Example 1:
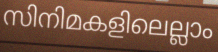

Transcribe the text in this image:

സിനിമകളിലെല്ലാം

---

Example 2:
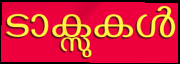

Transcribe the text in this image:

ടാക്സുകൾ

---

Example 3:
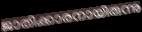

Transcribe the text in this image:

ജാതിക്കാരനായിരുന്നു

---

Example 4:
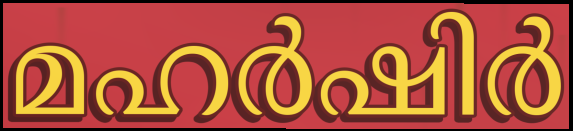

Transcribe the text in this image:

മഹർഷിർ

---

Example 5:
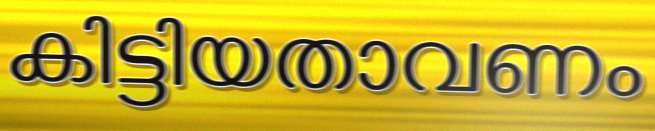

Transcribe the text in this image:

കിട്ടിയതാവണം